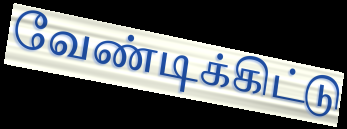
வேண்டிக்கிட்டு